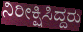
ನಿರೀಕ್ಷಿಸಿದ್ದರು